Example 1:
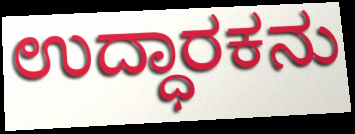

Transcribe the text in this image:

ಉದ್ಧಾರಕನು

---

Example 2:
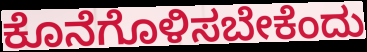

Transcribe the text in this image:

ಕೊನೆಗೊಳಿಸಬೇಕೆಂದು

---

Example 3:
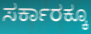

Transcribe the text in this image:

ಸರ್ಕಾರಕ್ಕೂ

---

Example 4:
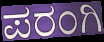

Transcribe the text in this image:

ಪರಂಗಿ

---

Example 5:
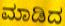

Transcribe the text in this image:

ಮಾಡಿದ